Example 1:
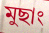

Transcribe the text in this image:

মুছাং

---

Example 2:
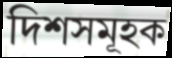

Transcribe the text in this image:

দিশসমূহক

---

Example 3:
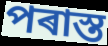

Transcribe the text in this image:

পৰাস্ত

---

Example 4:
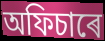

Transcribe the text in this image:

অফিচাৰে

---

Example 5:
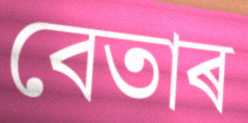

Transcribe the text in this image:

বেতাৰ